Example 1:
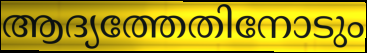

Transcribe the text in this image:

ആദ്യത്തേതിനോടും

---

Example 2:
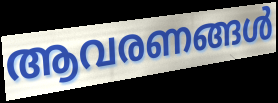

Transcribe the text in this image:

ആവരണങ്ങൾ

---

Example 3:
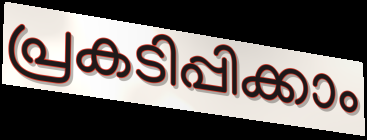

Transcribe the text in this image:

പ്രകടിപ്പിക്കാം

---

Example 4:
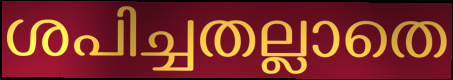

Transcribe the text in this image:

ശപിച്ചതല്ലാതെ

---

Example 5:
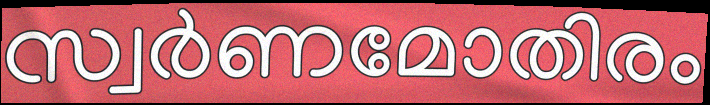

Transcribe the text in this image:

സ്വർണമോതിരം